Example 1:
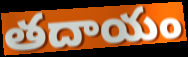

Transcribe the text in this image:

తదాయం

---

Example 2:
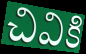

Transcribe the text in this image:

చివికి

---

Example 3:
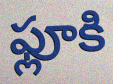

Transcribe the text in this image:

ఫ్లూకి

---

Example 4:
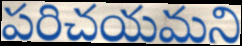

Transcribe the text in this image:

పరిచయమని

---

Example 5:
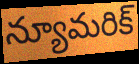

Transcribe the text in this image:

న్యూమరిక్